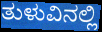
ತುಳುವಿನಲ್ಲಿ